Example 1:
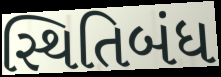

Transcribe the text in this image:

સ્થિતિબંધ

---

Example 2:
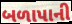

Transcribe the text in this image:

બળાપાની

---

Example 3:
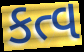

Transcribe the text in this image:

કત્વ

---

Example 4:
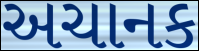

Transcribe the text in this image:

અચાનક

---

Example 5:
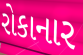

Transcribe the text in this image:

રોકાનાર